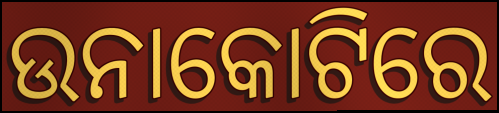
ଉନାକୋଟିରେ